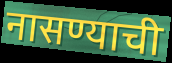
नासण्याची